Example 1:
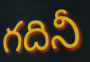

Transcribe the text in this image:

గదినీ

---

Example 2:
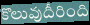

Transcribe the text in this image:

కొలువుదీరింది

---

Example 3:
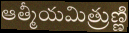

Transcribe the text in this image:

ఆత్మీయమిత్రుణ్ణి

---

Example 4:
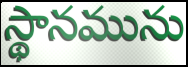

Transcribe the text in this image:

స్థానమును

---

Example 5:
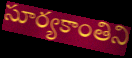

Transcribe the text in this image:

సూర్యకాంతిని